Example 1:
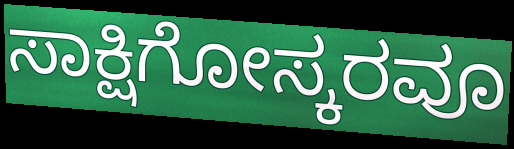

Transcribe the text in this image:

ಸಾಕ್ಷಿಗೋಸ್ಕರವೂ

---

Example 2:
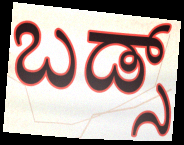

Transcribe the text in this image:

ಬಡ್ಸ್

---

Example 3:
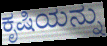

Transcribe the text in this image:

ಕೃಷಿಯನ್ನು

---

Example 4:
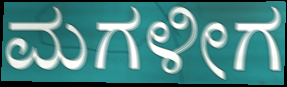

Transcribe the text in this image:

ಮಗಳೀಗ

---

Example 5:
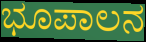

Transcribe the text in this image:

ಭೂಪಾಲನ